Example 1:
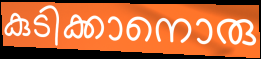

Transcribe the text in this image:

കുടിക്കാനൊരു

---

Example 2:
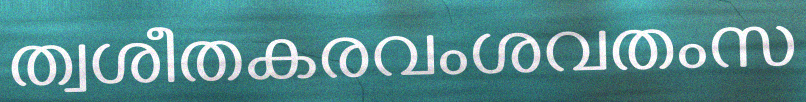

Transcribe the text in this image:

ത്വശീതകരവംശവതംസ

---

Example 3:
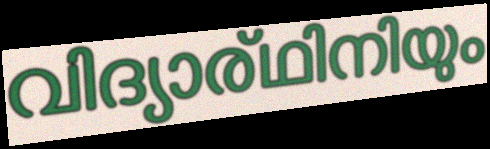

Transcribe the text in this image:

വിദ്യാര്ഥിനിയും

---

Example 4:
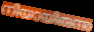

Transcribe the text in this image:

നീയായിരുന്നു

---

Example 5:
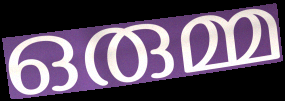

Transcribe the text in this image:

ഒരുമ്മ